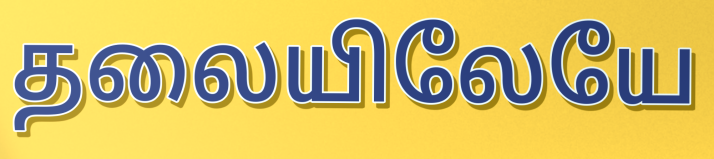
தலையிலேயே